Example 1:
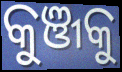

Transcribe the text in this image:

କୁଞ୍ଜକୁ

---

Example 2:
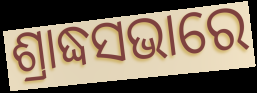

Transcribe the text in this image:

ଶ୍ରାଦ୍ଧସଭାରେ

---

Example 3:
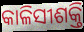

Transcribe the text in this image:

କାଳିସୀଶକ୍ତି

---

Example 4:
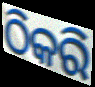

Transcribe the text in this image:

ଠିକରି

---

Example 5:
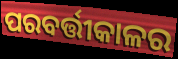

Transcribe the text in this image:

ପରବର୍ତ୍ତୀକାଳର